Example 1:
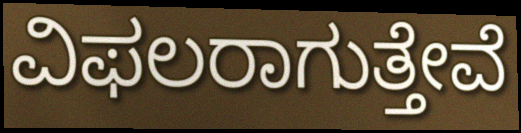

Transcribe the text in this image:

ವಿಫಲರಾಗುತ್ತೇವೆ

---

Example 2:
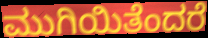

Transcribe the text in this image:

ಮುಗಿಯಿತೆಂದರೆ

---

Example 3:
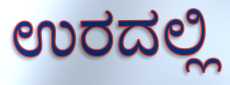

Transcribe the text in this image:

ಉರದಲ್ಲಿ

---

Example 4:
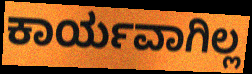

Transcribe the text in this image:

ಕಾರ್ಯವಾಗಿಲ್ಲ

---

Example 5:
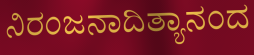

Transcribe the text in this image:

ನಿರಂಜನಾದಿತ್ಯಾನಂದ